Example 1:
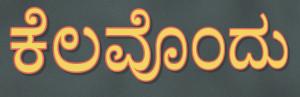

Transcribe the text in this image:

ಕೆಲವೊಂದು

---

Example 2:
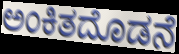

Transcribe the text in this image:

ಅಂಕಿತದೊಡನೆ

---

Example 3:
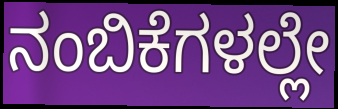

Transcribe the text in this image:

ನಂಬಿಕೆಗಳಲ್ಲೇ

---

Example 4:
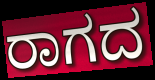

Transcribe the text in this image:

ರಾಗದ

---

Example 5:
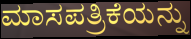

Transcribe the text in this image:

ಮಾಸಪತ್ರಿಕೆಯನ್ನು